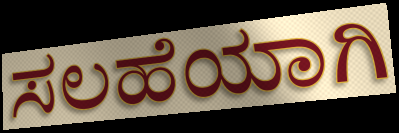
ಸಲಹೆಯಾಗಿ